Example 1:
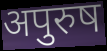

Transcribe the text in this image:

अपुरुष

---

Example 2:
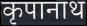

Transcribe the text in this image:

कृपानाथ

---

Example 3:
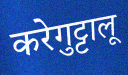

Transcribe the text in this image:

करेगुट्टालू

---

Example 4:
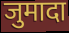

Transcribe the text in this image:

जुमादा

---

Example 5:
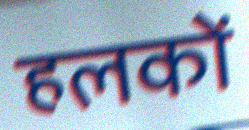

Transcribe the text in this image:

हलकों